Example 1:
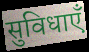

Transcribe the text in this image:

सुविधाएँ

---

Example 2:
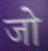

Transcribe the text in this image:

जो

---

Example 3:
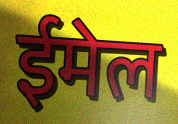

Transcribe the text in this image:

ईमेल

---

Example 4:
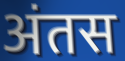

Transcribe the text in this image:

अंतस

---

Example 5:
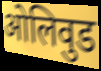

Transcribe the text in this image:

ओलिवुड